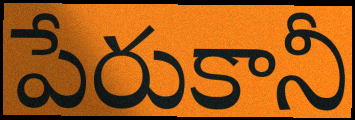
పేరుకానీ